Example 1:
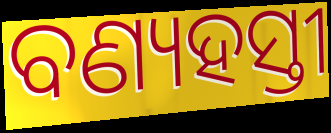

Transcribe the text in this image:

ବଣ୍ୟହସ୍ତୀ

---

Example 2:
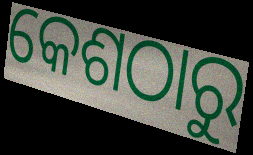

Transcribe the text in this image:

କେଶଠାରୁ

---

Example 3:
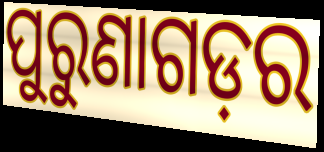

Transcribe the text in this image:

ପୁରୁଣାଗଡ଼ର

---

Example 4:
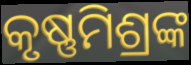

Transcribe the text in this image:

କୃଷ୍ଣମିଶ୍ରଙ୍କ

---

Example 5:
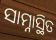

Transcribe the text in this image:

ସାମ୍ନାସ୍ଥିତ